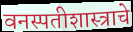
वनस्पतीशास्त्राचे